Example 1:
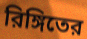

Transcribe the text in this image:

রিঙ্গিতের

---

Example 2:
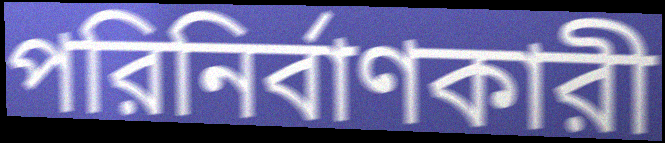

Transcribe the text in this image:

পরিনির্বাণকারী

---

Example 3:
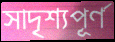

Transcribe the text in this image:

সাদৃশ্যপূর্ণ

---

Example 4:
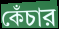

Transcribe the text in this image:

কেঁচার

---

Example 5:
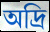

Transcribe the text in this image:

অদ্রি